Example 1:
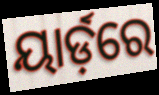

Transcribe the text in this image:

ୟାର୍ଡ଼ରେ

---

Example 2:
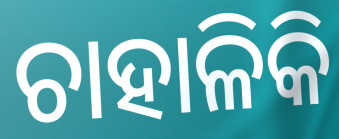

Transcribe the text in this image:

ଚାହାଳିକି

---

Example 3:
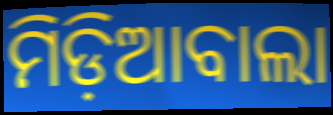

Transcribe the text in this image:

ମିଡ଼ିଆବାଲା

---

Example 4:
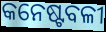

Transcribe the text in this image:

କନେଷ୍ଟବଳୀ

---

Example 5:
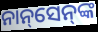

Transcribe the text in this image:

ନାନ୍‌ସେନ୍‌ଙ୍କ